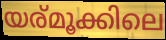
യര്മൂക്കിലെ